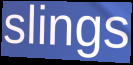
slings